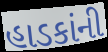
હાડકાંની